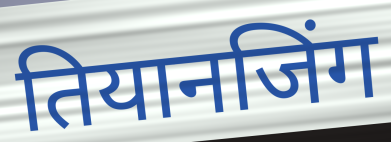
तियानजिंग